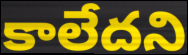
కాలేదని